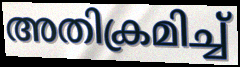
അതിക്രമിച്ച്